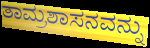
ತಾಮ್ರಶಾಸನವನ್ನು